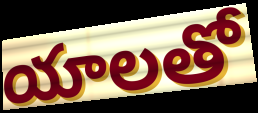
యాలతో